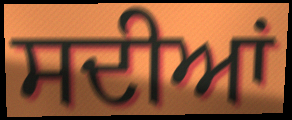
ਸਦੀਆਂ